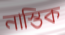
নাস্তিক